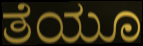
ತೆಯೂ